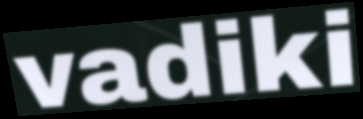
vadiki